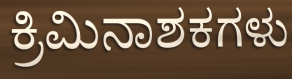
ಕ್ರಿಮಿನಾಶಕಗಳು